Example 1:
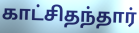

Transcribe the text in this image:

காட்சிதந்தார்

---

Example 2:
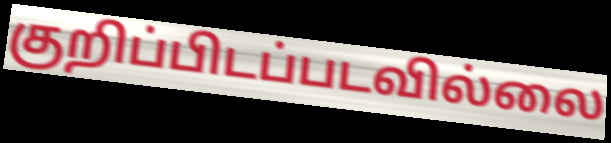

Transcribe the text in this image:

குறிப்பிடப்படவில்லை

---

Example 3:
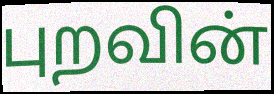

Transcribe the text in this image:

புறவின்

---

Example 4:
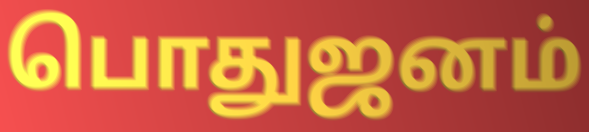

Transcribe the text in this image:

பொதுஜனம்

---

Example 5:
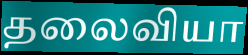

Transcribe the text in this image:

தலைவியா